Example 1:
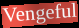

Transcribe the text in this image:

Vengeful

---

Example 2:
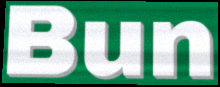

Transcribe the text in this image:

Bun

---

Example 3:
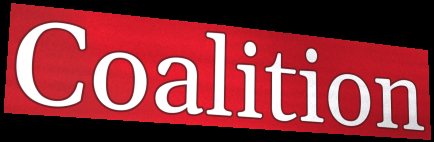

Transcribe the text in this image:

Coalition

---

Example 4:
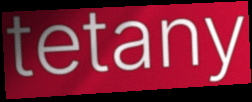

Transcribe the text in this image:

tetany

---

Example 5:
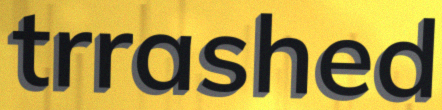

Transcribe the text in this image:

trrashed